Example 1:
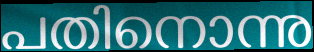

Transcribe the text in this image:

പതിനൊന്നു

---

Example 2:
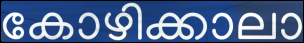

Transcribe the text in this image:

കോഴിക്കാലാ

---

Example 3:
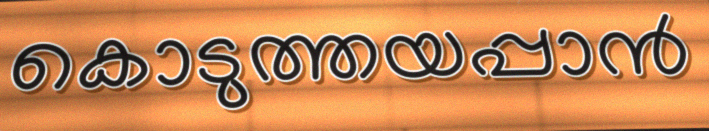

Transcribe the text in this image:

കൊടുത്തയപ്പാൻ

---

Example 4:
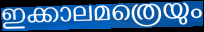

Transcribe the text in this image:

ഇക്കാലമത്രെയും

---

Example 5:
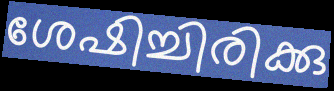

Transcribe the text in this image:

ശേഷിച്ചിരിക്കു